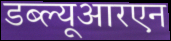
डब्ल्यूआरएन